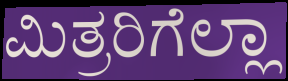
ಮಿತ್ರರಿಗೆಲ್ಲಾ